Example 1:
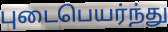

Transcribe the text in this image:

புடைபெயர்ந்து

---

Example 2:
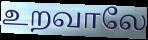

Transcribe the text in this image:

உறவாலே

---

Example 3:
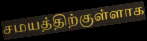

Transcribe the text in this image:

சமயத்திற்குள்ளாக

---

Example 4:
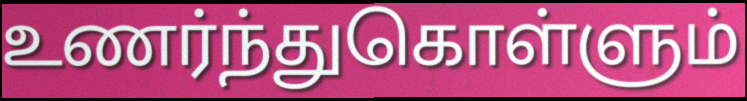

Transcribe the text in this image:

உணர்ந்துகொள்ளும்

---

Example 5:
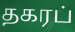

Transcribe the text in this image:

தகரப்